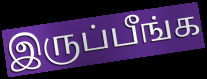
இருப்பீங்க